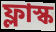
ফ্লাস্ক